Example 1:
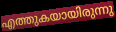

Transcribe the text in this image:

എത്തുകയായിരുന്നു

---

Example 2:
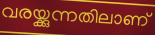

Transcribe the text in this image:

വരയ്ക്കുന്നതിലാണ്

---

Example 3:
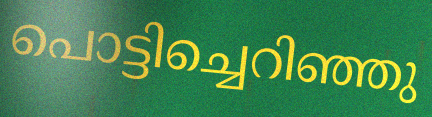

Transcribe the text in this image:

പൊട്ടിച്ചെറിഞ്ഞു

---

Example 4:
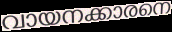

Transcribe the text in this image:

വായനക്കാരനെ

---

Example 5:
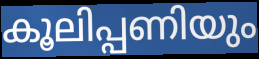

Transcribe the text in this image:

കൂലിപ്പണിയും